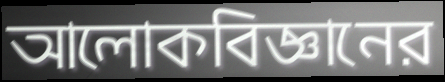
আলোকবিজ্ঞানের